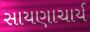
સાયણાચાર્ય